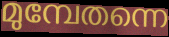
മുമ്പേതന്നെ